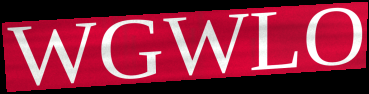
WGWLO